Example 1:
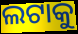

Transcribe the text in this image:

ଲଟାକୁ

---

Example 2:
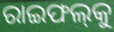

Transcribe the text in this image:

ରାଇଫଲ୍‍କୁ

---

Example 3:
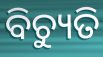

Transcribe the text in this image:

ବିଚ୍ୟୁତି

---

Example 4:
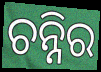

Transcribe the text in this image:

ଚନ୍ନିର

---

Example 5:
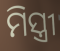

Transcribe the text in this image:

ମିସ୍ତ୍ରୀ